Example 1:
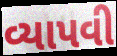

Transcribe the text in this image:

વ્યાપવી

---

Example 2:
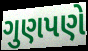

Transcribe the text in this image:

ગુણપણે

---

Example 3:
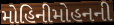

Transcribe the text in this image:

મોહિનીમોહનની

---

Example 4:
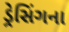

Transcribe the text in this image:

ડ્રેસિંગના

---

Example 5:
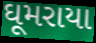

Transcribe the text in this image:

ઘૂમરાયા